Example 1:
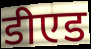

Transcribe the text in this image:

डीएड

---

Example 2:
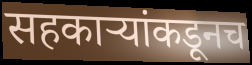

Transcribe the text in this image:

सहकार्‍यांकडूनच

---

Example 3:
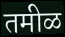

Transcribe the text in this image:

तमीळ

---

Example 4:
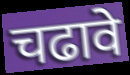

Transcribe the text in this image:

चढावे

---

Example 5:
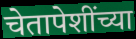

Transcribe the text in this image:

चेतापेशींच्या